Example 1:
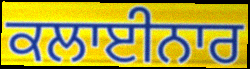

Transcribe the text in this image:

ਕਲਾਈਨਾਰ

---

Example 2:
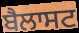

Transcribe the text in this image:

ਬੈਲਾਸਟ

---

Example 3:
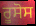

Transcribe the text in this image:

ਰੂਸੋਸ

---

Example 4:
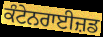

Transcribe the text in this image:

ਕੰਟੇਨਰਾਈਜ਼ਡ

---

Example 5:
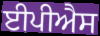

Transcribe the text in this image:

ਈਪੀਐਸ